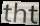
tht